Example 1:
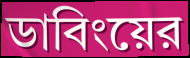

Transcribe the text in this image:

ডাবিংয়ের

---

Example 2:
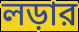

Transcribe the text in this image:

লড়ার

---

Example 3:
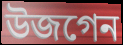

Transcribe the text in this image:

উজগেন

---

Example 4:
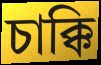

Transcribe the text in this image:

চাক্কি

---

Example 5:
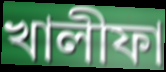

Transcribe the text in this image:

খালীফা